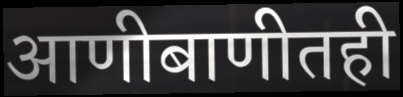
आणीबाणीतही